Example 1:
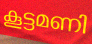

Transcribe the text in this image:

കൂട്ടമണി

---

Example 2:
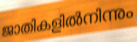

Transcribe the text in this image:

ജാതികളിൽനിന്നും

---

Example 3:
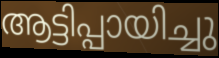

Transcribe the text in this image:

ആട്ടിപ്പായിച്ചു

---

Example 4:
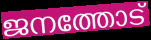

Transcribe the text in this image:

ജനത്തോട്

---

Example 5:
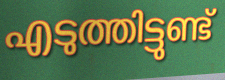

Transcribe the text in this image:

എടുത്തിട്ടുണ്ട്